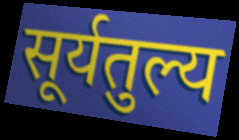
सूर्यतुल्य